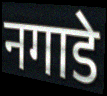
नगाडे